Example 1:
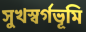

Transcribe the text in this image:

সুখস্বর্গভূমি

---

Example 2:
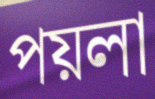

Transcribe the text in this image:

পয়লা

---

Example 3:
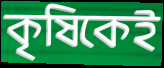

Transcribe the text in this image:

কৃষিকেই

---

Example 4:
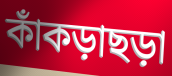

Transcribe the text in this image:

কাঁকড়াছড়া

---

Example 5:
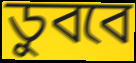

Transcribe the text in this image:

ডুববে